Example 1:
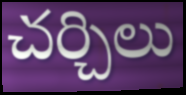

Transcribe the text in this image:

చర్చిలు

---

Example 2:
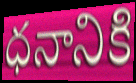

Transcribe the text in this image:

ధనానికి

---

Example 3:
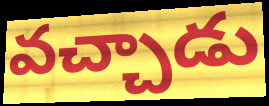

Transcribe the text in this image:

వచ్చాడు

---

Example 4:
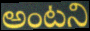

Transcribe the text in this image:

అంటని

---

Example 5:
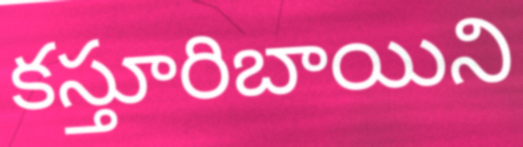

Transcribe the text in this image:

కస్తూరిబాయిని